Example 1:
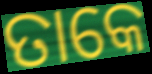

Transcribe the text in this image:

ତାକେ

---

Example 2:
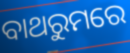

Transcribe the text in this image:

ବାଥରୁମରେ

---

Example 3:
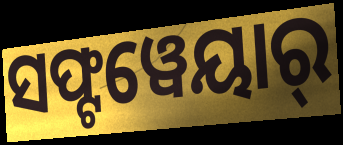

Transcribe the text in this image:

ସଫ୍ଟୱେୟାର୍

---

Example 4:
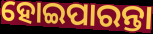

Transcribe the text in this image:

ହୋଇପାରନ୍ତା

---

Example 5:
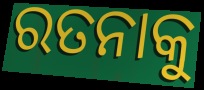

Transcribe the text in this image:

ରତନାକୁ